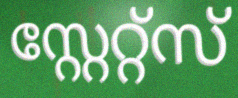
സ്റ്റേറ്റ്സ്